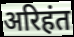
अरिहंत